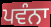
ਪਵੰਨਾ